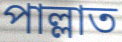
পাল্লাত